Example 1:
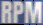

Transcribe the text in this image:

RPM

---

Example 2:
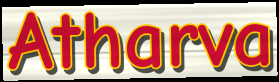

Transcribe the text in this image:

Atharva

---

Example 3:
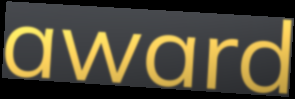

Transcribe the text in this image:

award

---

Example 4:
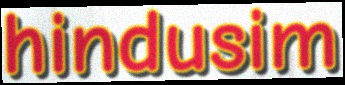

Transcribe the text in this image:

hindusim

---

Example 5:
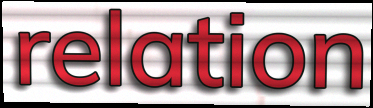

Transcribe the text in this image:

relation